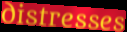
distresses